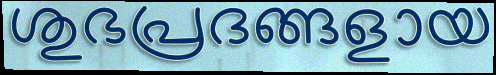
ശുഭപ്രദങ്ങളായ